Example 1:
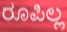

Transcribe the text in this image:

ರೂಪಿಲ್ಲ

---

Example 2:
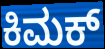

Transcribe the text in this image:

ಕಿಮಕ್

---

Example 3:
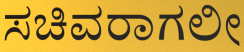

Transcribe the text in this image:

ಸಚಿವರಾಗಲೀ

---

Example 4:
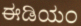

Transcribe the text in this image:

ಈಡಿಯಂ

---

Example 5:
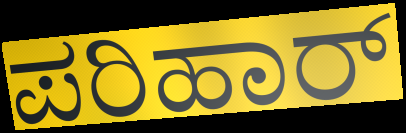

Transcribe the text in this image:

ಪರಿಹಾರ್